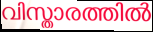
വിസ്താരത്തിൽ